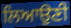
ਲਿਆਉਣੀ